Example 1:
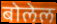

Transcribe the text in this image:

बोलेल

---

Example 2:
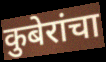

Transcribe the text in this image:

कुबेरांचा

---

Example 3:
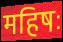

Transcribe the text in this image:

महिषः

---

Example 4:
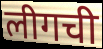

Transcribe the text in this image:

लीगची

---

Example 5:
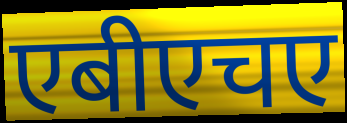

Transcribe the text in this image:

एबीएचए